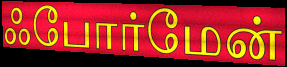
ஃபோர்மேன்